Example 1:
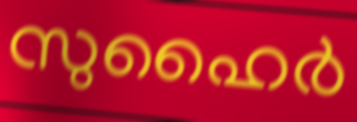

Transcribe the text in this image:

സുഹൈർ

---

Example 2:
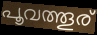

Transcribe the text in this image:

പൂവത്തൂര്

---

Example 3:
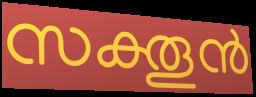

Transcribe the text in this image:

സക്തൂൻ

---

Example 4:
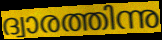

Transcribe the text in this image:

ദ്വാരത്തിന്നു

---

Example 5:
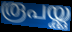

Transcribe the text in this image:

രൂപയ്ക്കു